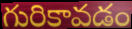
గురికావడం